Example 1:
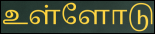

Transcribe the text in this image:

உள்ளோடு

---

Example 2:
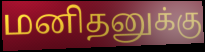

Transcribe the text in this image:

மனிதனுக்கு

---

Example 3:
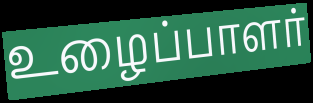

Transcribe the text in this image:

உழைப்பாளர்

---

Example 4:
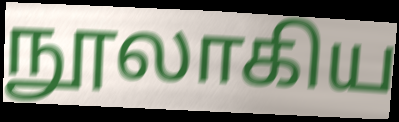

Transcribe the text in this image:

நூலாகிய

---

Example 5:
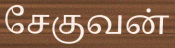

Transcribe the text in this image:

சேகுவன்